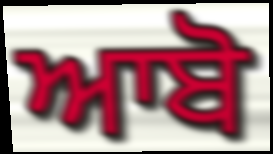
ਆਬੋ